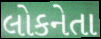
લોકનેતા